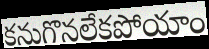
కనుగొనలేకపోయాం